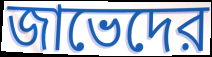
জাভেদের